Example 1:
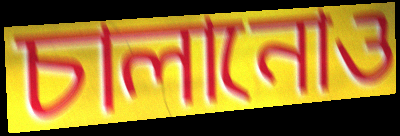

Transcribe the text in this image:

চালানোও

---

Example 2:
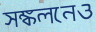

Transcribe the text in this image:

সঙ্কলনেও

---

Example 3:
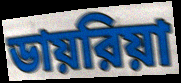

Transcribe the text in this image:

ডায়রিয়া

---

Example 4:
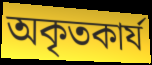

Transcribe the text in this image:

অকৃতকার্য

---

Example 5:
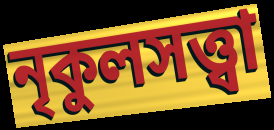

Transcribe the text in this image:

নৃকুলসত্ত্বা